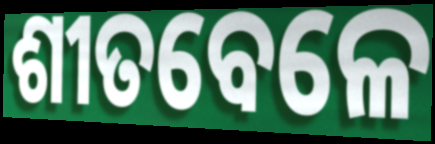
ଶୀତବେଳେ